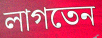
লাগতেন